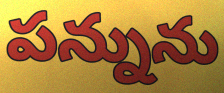
పన్నును